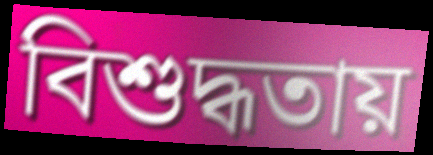
বিশুদ্ধতায়